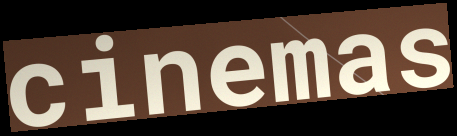
cinemas